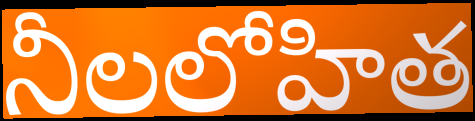
నీలలోహిత